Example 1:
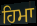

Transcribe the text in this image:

ਹਿਮਾ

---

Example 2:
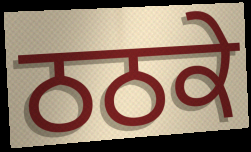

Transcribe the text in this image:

ਠਠਕੇ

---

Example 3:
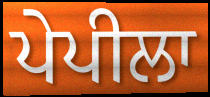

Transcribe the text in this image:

ਪੇਪੀਲਾ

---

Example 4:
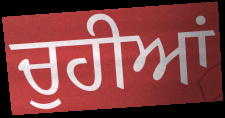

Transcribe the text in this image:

ਚੁਹੀਆਂ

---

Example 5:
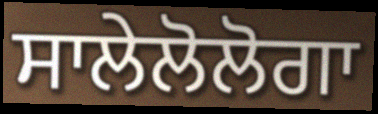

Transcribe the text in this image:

ਸਾਲੇਲੋਲੋਗਾ